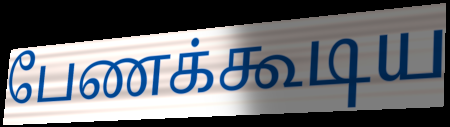
பேணக்கூடிய